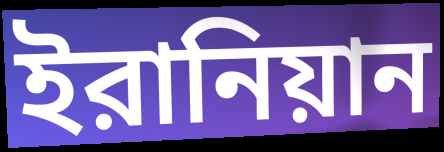
ইরানিয়ান